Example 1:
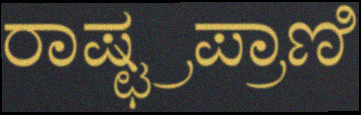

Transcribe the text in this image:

ರಾಷ್ಟ್ರಪ್ರಾಣಿ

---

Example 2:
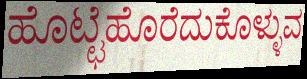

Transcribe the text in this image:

ಹೊಟ್ಟೆಹೊರೆದುಕೊಳ್ಳುವ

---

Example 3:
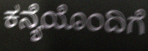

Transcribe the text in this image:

ಕನ್ಯೆಯೊಂದಿಗೆ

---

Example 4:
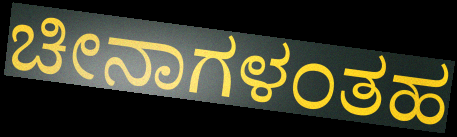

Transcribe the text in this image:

ಚೀನಾಗಳಂತಹ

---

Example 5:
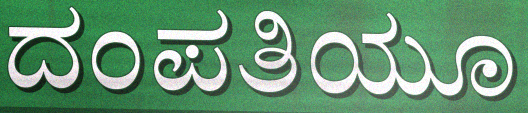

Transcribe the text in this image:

ದಂಪತಿಯೂ